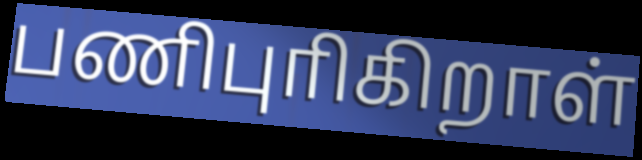
பணிபுரிகிறாள்